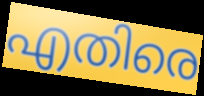
എതിരെ